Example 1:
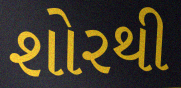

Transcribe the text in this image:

શોરથી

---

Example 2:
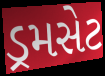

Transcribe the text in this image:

ડ્રમસેટ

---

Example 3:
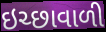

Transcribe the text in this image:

ઇચ્છાવાળી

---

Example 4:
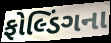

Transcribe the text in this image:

ફોલ્ડિંગના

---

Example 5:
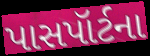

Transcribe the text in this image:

પાસપૉર્ટના